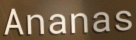
Ananas